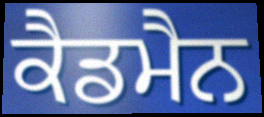
ਕੈਡਮੈਨ